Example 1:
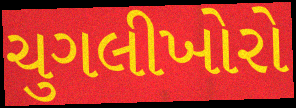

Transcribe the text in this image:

ચુગલીખોરો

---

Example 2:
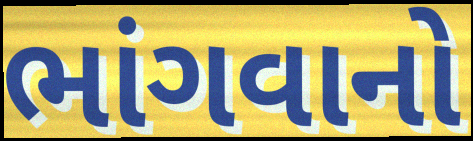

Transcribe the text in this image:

ભાંગવાનો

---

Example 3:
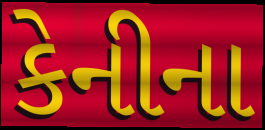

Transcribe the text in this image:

કેનીના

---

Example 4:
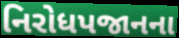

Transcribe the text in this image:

નિરોધપજાનના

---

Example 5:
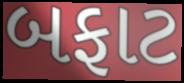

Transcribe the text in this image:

બફાટ